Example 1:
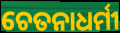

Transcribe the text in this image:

ଚେତନାଧର୍ମୀ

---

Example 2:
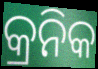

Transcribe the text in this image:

କ୍ରନିକ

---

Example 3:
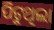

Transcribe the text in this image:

ପିଟୁଥିଲା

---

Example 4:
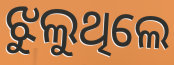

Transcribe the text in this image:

ଝୁଲୁଥିଲେ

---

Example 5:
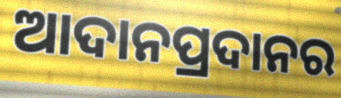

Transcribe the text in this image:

ଆଦାନପ୍ରଦାନର